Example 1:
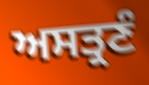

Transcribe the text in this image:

ਅਸਤ੍ਰਣੰ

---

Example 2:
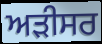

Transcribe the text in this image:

ਅੜੀਸਰ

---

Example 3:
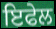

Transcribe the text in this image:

ਇਫੇਲ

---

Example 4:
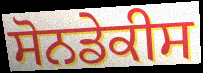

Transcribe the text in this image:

ਸੋਨਡੇਕੀਸ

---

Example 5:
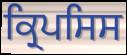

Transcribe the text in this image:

ਕ੍ਰਿਪਸਿਸ